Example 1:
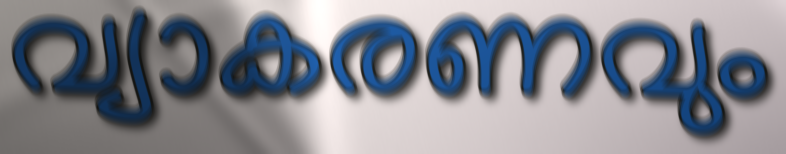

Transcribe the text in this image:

വ്യാകരണവും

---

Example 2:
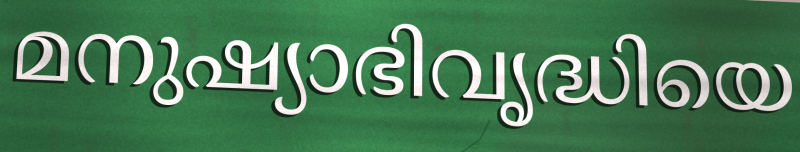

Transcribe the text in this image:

മനുഷ്യാഭിവൃദ്ധിയെ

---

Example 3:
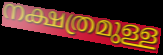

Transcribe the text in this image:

നക്ഷത്രമുള്ള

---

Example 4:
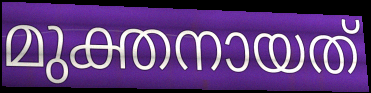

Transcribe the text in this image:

മുക്തനായത്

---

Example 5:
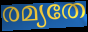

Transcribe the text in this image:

രമ്യതേ